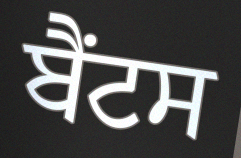
ਬੈਂਟਸ